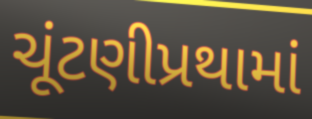
ચૂંટણીપ્રથામાં